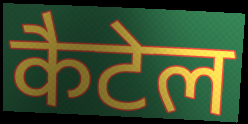
कैटेल